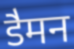
डैमन